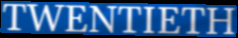
TWENTIETH